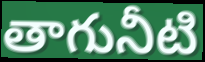
తాగునీటి